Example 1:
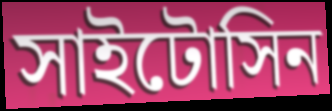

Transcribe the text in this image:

সাইটোসিন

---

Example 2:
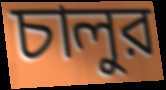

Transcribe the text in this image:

চালুর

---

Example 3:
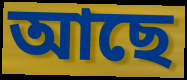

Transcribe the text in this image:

আছে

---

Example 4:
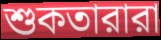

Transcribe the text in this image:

শুকতারারা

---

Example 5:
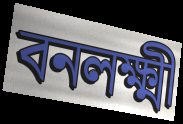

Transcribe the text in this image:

বনলক্ষ্মী